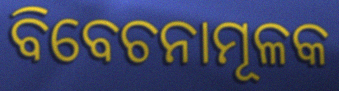
ବିବେଚନାମୂଳକ